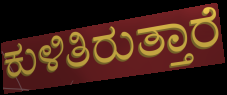
ಕುಳಿತಿರುತ್ತಾರೆ